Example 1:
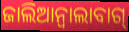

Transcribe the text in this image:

ଜାଲିଆନ୍ଵାଲାବାଗ୍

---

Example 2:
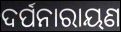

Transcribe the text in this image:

ଦର୍ପନାରାୟଣ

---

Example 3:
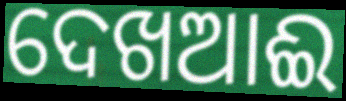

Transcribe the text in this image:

ଦେଖଆଈ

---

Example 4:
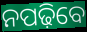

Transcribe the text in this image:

ନପଢ଼ିବେ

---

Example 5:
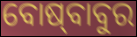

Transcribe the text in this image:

ବୋଷ୍‍ବାବୁର